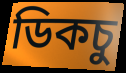
ডিকচু